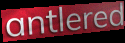
antlered